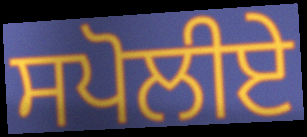
ਸਪੋਲੀਏ